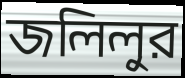
জলিলুর